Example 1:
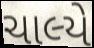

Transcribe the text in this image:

ચાલ્યે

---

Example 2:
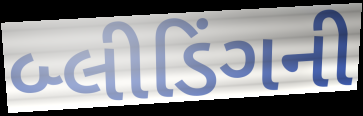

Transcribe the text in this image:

બ્લીડિંગની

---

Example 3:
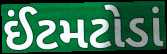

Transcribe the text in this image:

ઈંટમટોડાં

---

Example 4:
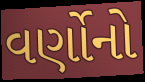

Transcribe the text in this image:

વર્ણોનો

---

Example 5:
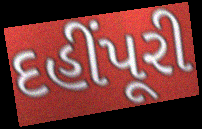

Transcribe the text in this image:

દહીંપૂરી